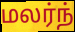
மலர்ந்